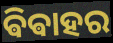
ଵିଵାହର